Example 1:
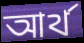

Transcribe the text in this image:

আৰ্থ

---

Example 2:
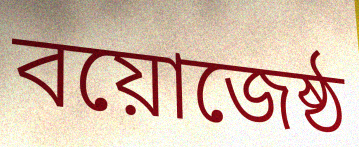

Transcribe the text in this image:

বয়োজেষ্ঠ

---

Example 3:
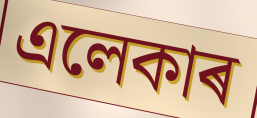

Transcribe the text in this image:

এলেকাৰ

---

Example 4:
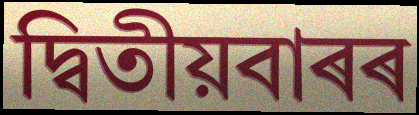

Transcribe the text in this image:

দ্বিতীয়বাৰৰ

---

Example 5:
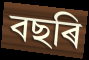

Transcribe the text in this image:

বছৰি